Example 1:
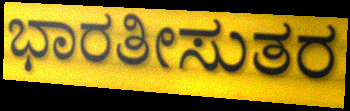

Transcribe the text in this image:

ಭಾರತೀಸುತರ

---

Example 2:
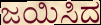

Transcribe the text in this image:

ಜಯಿಸಿದ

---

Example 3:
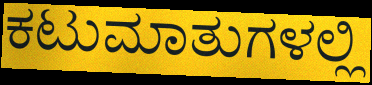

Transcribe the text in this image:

ಕಟುಮಾತುಗಳಲ್ಲಿ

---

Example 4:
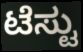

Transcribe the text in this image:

ಟೆಸ್ಟು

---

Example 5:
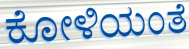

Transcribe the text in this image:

ಕೋಳಿಯಂತೆ